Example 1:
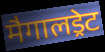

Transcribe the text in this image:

मैगालड्रेट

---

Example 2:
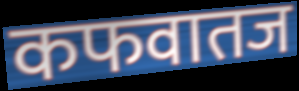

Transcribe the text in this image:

कफवातज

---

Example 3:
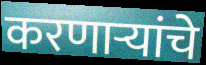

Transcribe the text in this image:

करणाऱ्यांचे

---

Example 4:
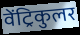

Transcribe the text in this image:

वेंट्रिकुलर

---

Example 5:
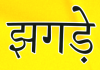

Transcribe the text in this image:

झगड़े